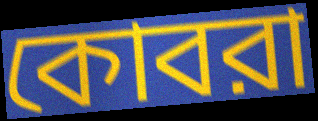
কোবরা